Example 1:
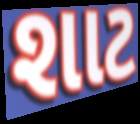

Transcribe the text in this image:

શાટ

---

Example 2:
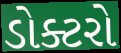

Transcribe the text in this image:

ડોક્ટરો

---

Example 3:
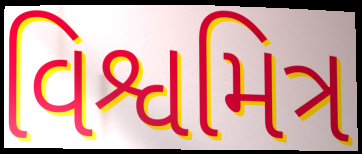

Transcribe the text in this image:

વિશ્વમિત્ર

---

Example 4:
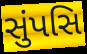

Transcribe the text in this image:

સુંપસિ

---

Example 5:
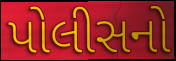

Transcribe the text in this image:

પોલીસનો